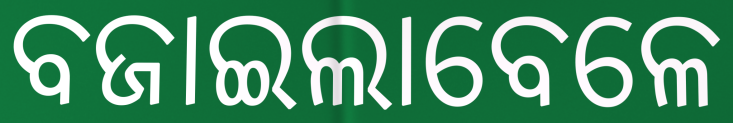
ବଜାଇଲାବେଳେ